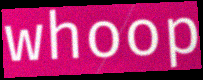
whoop